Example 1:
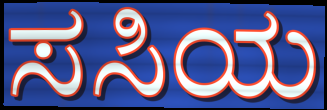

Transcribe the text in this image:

ಸಸಿಯ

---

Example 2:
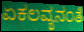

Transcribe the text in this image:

ಏಕಲವ್ಯನಂತೆ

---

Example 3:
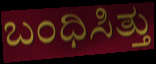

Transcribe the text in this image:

ಬಂಧಿಸಿತ್ತು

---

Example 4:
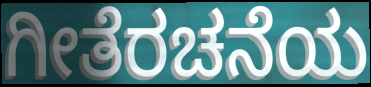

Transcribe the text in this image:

ಗೀತೆರಚನೆಯ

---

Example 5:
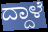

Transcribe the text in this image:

ದ್ದಾಳೆ